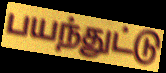
பயந்துட்டு